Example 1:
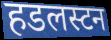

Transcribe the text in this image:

हडलस्टन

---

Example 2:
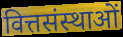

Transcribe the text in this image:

वित्तसंस्थाओं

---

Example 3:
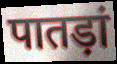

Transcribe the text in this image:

पातड़ां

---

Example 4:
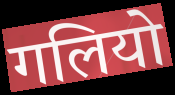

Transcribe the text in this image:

गलियो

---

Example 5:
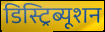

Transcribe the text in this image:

डिस्ट्रिब्यूशन